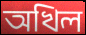
অখিল